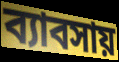
ব্যাবসায়